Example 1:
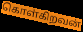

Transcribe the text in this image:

கொள்கிறவன்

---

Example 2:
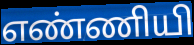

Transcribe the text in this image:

எண்ணியி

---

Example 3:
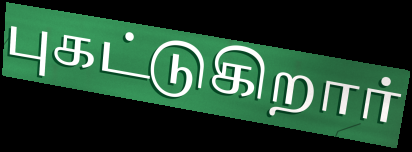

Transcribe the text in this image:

புகட்டுகிறார்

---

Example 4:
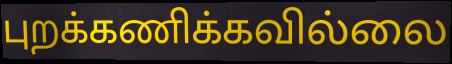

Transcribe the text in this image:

புறக்கணிக்கவில்லை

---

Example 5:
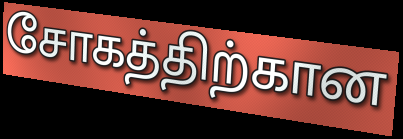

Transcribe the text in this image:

சோகத்திற்கான